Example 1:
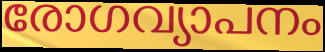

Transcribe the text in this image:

രോഗവ്യാപനം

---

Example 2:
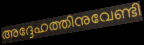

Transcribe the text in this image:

അദ്ദേഹത്തിനുവേണ്ടി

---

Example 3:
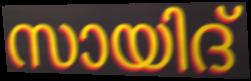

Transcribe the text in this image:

സായിദ്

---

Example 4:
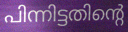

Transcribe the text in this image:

പിന്നിട്ടതിന്റെ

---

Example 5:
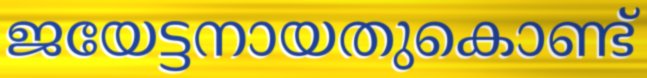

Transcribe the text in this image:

ജയേട്ടനായതുകൊണ്ട്